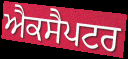
ਐਕਸੈਪਟਰ